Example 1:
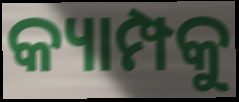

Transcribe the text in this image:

କ୍ୟାମ୍ପକୁ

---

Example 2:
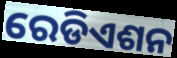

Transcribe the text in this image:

ରେଡିଏଶନ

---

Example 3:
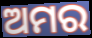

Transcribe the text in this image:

ଅମର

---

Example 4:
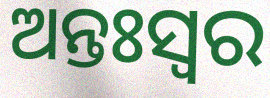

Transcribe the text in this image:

ଅନ୍ତଃସ୍ଵର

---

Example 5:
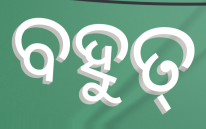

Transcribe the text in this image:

ବହୁତ୍